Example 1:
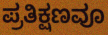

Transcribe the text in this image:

ಪ್ರತಿಕ್ಷಣವೂ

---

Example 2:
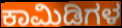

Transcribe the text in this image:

ಕಾಮಿಡಿಗಳ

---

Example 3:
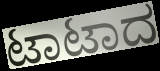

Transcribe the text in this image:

ಟಾಟಾದ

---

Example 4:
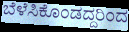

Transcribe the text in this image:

ಬೆಳೆಸಿಕೊಂಡದ್ದರಿಂದ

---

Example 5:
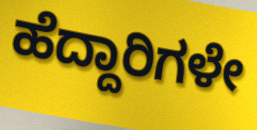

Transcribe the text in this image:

ಹೆದ್ದಾರಿಗಳೇ